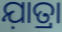
ଯ଼ାତ୍ରା